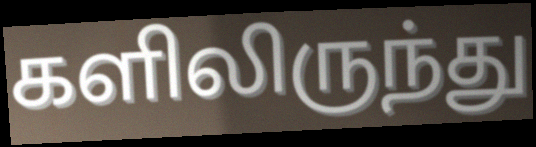
களிலிருந்து